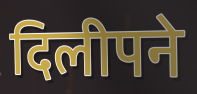
दिलीपने